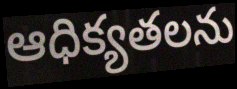
ఆధిక్యతలను